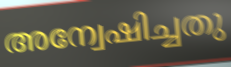
അന്വേഷിച്ചതു